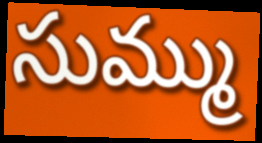
సుమ్ము